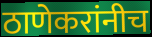
ठाणेकरांनीच